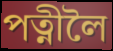
পত্নীলৈ